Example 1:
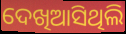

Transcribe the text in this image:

ଦେଖିଆସିଥିଲି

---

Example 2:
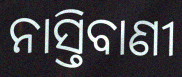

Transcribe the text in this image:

ନାସ୍ତିବାଣୀ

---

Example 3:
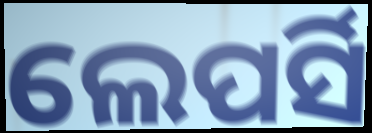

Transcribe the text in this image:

ଲେପର୍ସି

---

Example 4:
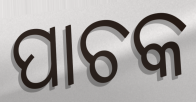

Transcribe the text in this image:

ପାଚକ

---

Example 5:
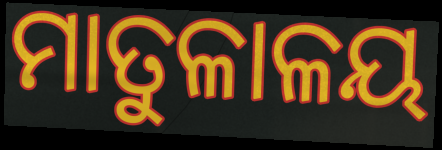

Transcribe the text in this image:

ମାତୁଳାଳୟ